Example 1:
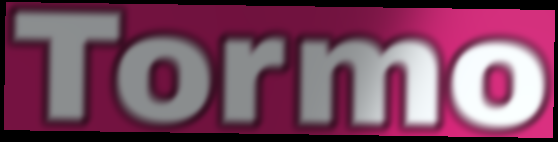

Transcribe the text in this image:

Tormo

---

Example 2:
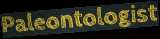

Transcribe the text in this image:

Paleontologist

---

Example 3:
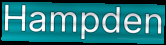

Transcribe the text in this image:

Hampden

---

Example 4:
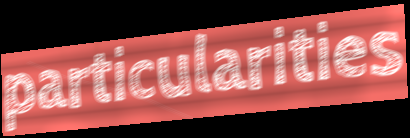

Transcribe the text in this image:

particularities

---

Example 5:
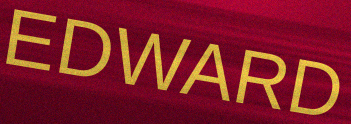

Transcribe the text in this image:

EDWARD